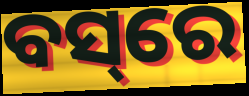
ବସ୍‌ରେ